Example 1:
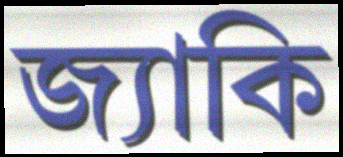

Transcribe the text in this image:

জ্যাকি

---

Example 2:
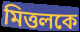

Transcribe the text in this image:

মিত্তলকে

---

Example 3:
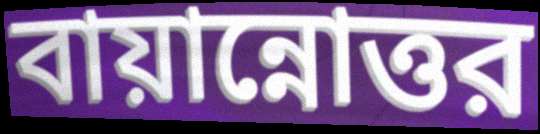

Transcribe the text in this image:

বায়ান্নোত্তর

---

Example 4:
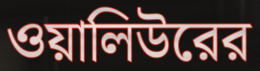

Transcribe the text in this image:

ওয়ালিউরের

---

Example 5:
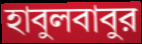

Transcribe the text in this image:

হাবুলবাবুর